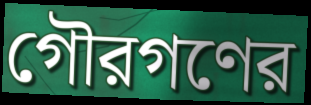
গৌরগণের